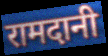
रामदानी